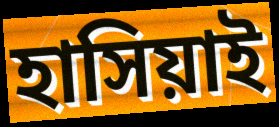
হাসিয়াই